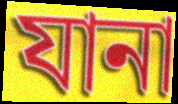
যানা